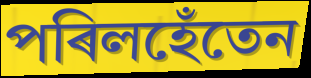
পৰিলহেঁতেন